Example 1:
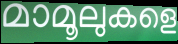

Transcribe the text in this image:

മാമൂലുകളെ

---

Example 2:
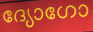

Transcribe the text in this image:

ദ്യോഗോ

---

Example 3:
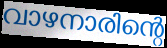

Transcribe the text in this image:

വാഴനാരിന്റെ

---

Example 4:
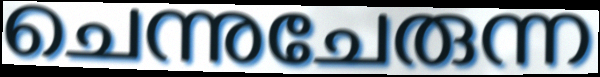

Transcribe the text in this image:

ചെന്നുചേരുന്ന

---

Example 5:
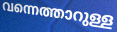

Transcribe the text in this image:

വന്നെത്താറുള്ള